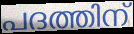
പദത്തിന്